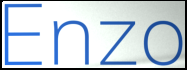
Enzo